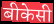
बीकेसी